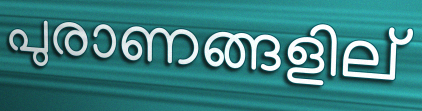
പുരാണങ്ങളില്